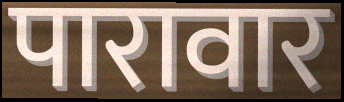
पारावार